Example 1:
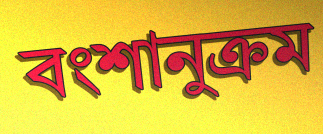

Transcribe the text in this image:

বংশানুক্রম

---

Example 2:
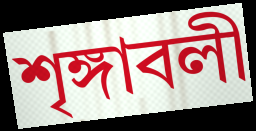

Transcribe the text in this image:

শৃঙ্গাবলী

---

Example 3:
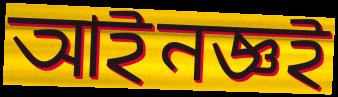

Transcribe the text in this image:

আইনজ্ঞই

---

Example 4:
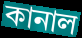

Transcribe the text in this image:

কানাল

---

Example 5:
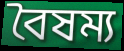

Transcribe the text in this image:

বৈষম্য